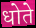
धोते